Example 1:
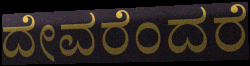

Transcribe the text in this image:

ದೇವರೆಂದರೆ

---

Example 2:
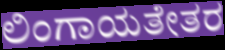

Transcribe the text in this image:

ಲಿಂಗಾಯತೇತರ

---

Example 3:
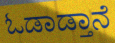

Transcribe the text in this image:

ಓಡಾಡ್ತಾನೆ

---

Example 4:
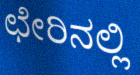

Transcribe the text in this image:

ಛೇರಿನಲ್ಲಿ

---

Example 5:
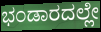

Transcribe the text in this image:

ಭಂಡಾರದಲ್ಲೇ